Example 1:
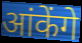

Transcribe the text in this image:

आंकेंगे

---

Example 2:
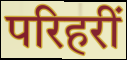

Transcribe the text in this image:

परिहरीं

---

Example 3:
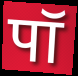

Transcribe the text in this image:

पॉ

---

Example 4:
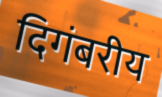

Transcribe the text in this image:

दिगंबरीय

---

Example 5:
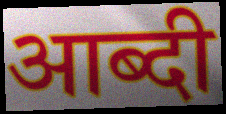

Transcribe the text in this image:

आब्दी